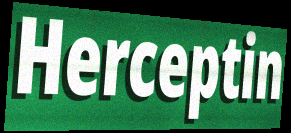
Herceptin